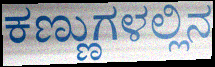
ಕಣ್ಣುಗಳಲ್ಲಿನ